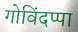
गोविंदप्पा